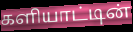
களியாட்டின்